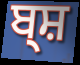
ਬ੍ਸ਼